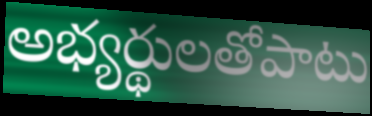
అభ్యర్థులతోపాటు